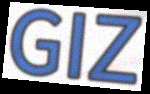
GIZ